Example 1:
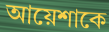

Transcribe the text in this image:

আয়েশাকে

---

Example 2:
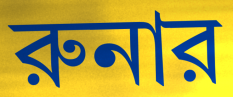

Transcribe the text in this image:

রুনার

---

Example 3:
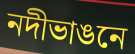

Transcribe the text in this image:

নদীভাঙনে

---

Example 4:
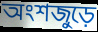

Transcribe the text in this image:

অংশজুড়ে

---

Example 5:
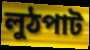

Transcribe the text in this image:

লুঠপাট